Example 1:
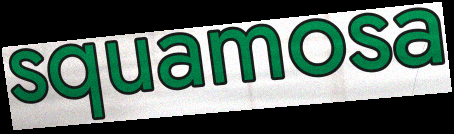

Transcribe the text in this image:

squamosa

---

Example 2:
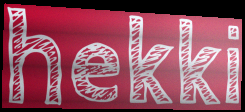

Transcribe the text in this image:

hekki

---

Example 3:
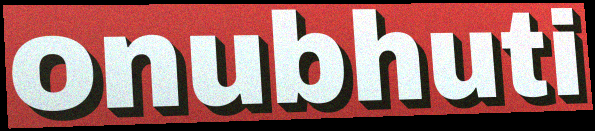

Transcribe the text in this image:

onubhuti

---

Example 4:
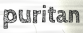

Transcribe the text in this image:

puritan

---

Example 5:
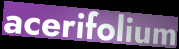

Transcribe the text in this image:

acerifolium